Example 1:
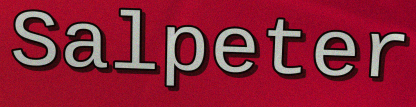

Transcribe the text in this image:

Salpeter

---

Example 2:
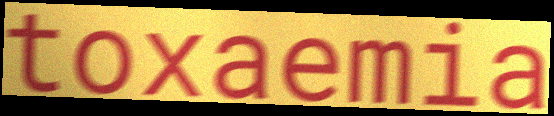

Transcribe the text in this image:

toxaemia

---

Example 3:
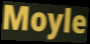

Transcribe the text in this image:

Moyle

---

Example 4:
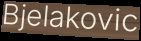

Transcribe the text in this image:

Bjelakovic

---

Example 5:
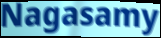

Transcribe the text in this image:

Nagasamy